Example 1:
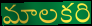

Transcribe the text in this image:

మాలకరి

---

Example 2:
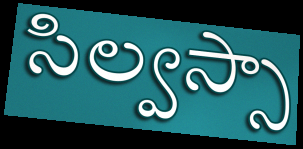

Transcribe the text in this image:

సిల్వస్సా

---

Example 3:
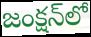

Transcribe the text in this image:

జంక్షన్‌లో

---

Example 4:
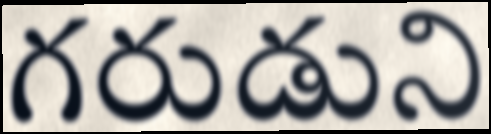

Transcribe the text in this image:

గరుడుని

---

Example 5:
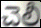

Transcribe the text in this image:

చెలీ